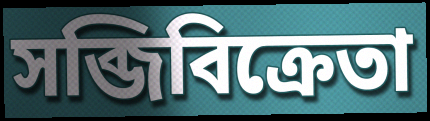
সব্জিবিক্রেতা